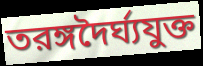
তরঙ্গদৈর্ঘ্যযুক্ত